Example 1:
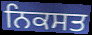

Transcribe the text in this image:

ਨਿਕਸਤ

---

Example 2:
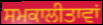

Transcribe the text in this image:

ਸਮਕਾਲੀਤਾਵਾਂ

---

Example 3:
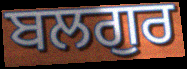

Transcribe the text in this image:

ਬਲਗੁਰ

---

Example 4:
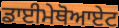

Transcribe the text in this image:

ਡਾਈਮੇਥੋਆਏਟ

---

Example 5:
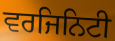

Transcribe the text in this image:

ਵਰਜਿਨਿਟੀ